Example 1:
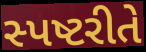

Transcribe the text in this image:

સ્પષ્ટરીતે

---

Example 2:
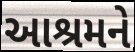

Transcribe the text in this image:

આશ્રમને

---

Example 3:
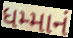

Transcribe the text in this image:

ધમ્માનં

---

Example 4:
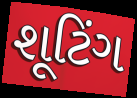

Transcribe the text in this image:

શૂટિંગ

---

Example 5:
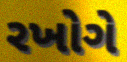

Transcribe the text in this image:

રખોગે